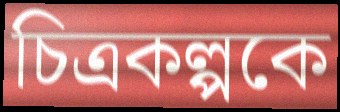
চিত্রকল্পকে